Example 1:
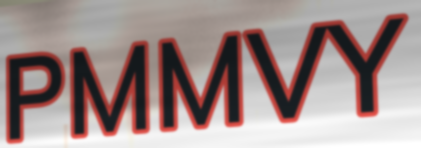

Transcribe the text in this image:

PMMVY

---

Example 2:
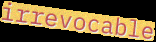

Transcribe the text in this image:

irrevocable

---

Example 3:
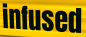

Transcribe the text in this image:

infused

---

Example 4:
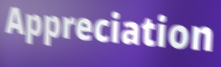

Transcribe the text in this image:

Appreciation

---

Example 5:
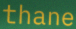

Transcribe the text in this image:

thane